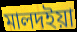
মালদইয়া